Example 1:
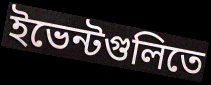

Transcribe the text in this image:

ইভেন্টগুলিতে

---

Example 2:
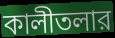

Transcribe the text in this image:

কালীতলার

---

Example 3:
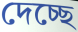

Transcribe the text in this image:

দেচ্ছে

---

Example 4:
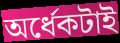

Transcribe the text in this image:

অর্ধেকটাই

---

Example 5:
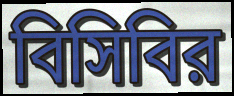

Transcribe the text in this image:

বিসিবির